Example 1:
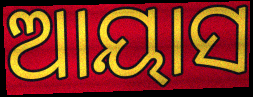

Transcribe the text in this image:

ଆୟାସ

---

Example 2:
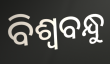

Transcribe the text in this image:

ବିଶ୍ୱବନ୍ଧୁ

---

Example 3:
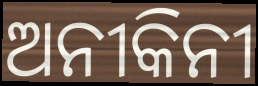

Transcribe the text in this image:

ଅନୀକିନୀ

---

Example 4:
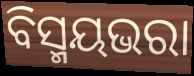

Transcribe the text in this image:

ବିସ୍ମୟଭରା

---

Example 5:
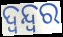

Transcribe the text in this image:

ଦ୍ଵନ୍ଦ୍ୱର